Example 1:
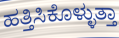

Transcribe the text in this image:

ಹತ್ತಿಸಿಕೊಳ್ಳುತ್ತಾ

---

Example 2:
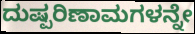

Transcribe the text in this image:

ದುಷ್ಪರಿಣಾಮಗಳನ್ನೇ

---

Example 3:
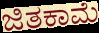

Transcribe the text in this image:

ಜಿತಕಾಮೆ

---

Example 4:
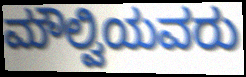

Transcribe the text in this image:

ಮೌಲ್ವಿಯವರು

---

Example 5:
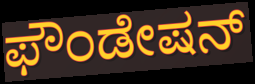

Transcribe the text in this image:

ಫೌಂಡೇಷನ್